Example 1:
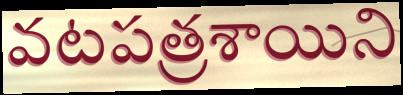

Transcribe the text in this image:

వటపత్రశాయిని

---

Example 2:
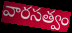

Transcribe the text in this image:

వారసత్వం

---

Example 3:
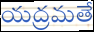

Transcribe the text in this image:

యద్రమతే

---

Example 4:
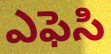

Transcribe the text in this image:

ఎఫెసి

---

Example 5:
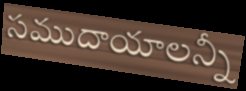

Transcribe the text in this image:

సముదాయాలన్నీ